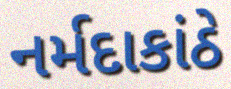
નર્મદાકાંઠે